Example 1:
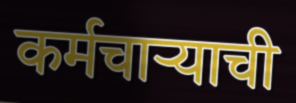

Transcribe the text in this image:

कर्मचाऱ्याची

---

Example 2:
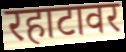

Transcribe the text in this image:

रहाटावर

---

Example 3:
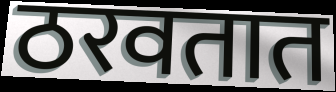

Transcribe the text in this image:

ठरवतात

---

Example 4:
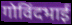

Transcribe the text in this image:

गोविंदभाई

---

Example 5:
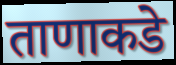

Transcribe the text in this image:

ताणाकडे